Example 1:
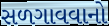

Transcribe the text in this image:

સળગાવવાનો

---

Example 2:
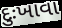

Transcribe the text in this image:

દુઃખાવા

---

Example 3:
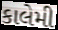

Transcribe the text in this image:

કાલેમી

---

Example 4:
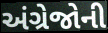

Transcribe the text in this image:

અંગ્રેજોની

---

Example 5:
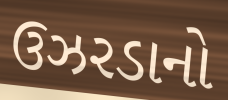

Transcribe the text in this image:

ઉઝરડાનો